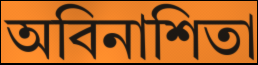
অবিনাশিতা